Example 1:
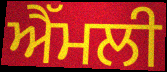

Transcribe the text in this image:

ਐੱਮਲੀ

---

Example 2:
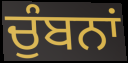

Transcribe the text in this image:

ਚੁੰਬਨਾਂ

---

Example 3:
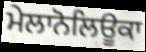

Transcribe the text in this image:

ਮੇਲਾਨੋਲਿਊਕਾ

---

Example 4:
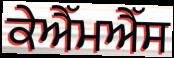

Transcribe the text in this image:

ਕੇਐੱਮਐੱਸ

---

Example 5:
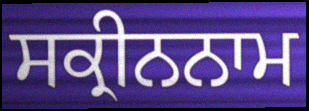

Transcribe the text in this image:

ਸਕ੍ਰੀਨਨਾਮ